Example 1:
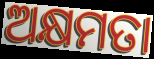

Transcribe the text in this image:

ଅକ୍ଷମତା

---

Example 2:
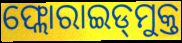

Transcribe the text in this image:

ଫ୍ଲୋରାଇଡ୍‌ମୁକ୍ତ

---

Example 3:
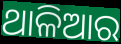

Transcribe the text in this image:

ଥାଳିଆର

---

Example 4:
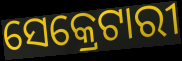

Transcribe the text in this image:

ସେକ୍ରେଟାରୀ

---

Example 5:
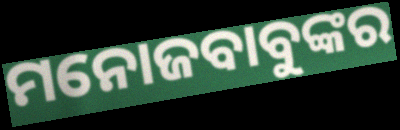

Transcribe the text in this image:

ମନୋଜବାବୁଙ୍କର